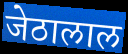
जेठालाल